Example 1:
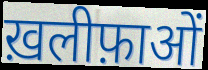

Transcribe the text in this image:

ख़लीफ़ाओं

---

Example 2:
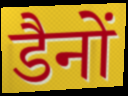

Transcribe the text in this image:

डैनों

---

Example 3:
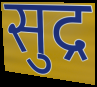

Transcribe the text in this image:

सुद्र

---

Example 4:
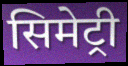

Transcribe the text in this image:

सिमेट्री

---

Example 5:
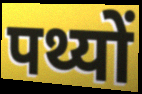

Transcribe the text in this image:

पथ्यों